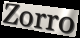
Zorro